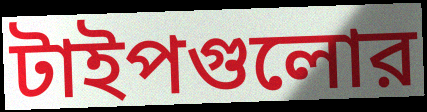
টাইপগুলোর